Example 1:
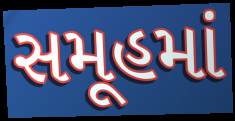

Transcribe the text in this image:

સમૂહમાં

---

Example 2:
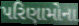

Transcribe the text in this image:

પરિણામોના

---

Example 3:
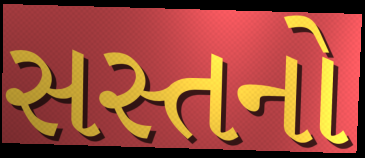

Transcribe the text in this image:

સસ્તનો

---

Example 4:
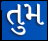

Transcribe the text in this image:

તુમ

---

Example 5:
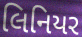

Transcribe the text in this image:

લિનિયર